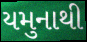
યમુનાથી